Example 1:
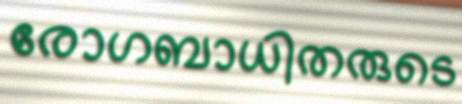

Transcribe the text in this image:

രോഗബാധിതരുടെ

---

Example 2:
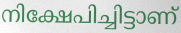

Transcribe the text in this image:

നിക്ഷേപിച്ചിട്ടാണ്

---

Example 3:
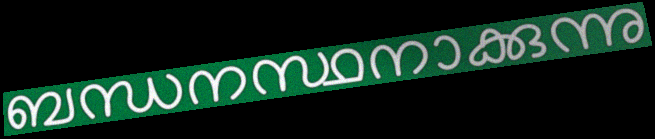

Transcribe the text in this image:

ബന്ധനസ്ഥനാക്കുന്നു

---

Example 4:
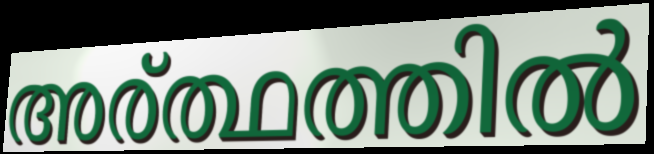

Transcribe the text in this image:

അര്ത്ഥത്തിൽ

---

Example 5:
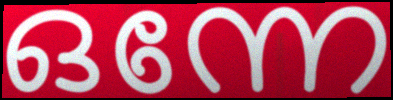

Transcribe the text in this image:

ഒന്നേ